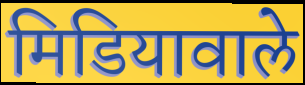
मिडियावाले